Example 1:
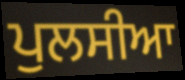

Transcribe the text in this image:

ਪੁਲਸੀਆ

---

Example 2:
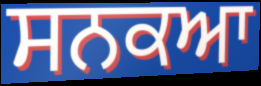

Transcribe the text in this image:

ਸਨਕਆ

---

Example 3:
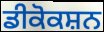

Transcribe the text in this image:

ਡੀਕੋਕਸ਼ਨ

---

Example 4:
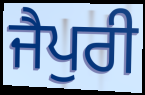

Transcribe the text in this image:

ਜੈਪੁਰੀ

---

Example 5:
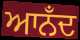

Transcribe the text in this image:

ਆਨਁਦ